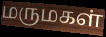
மருமகள்